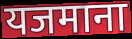
यजमाना